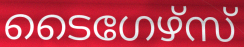
ടൈഗേഴ്സ്